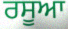
ਰਸੂਆ